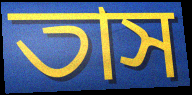
তাস